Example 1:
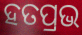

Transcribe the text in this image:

ହତପ୍ରଭ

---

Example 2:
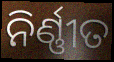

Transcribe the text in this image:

ନିର୍ଣ୍ଣୀତ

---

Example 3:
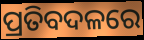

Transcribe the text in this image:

ପ୍ରତିବଦଳରେ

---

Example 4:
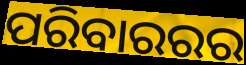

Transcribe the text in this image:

ପରିବାରରର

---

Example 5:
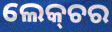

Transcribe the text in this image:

ଲେକ୍‍ଚର